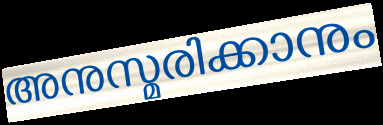
അനുസ്മരിക്കാനും